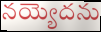
నయ్యెదను